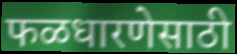
फळधारणेसाठी